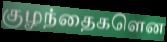
குழந்தைகளென